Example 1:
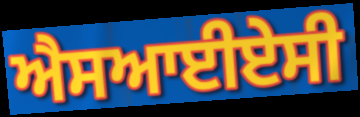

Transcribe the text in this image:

ਐਸਆਈਏਸੀ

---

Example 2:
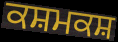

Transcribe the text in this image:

ਕਸ਼ਮਕਸ਼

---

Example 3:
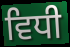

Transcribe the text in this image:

ਵਿਧੀ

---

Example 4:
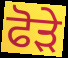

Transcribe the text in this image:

ਫੋੜੇ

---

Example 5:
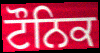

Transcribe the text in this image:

ਟੌਨਿਕ